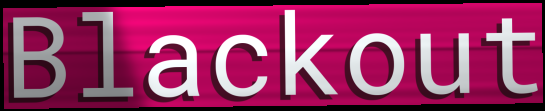
Blackout